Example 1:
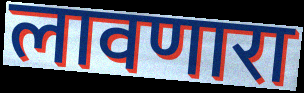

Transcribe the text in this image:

लावणारा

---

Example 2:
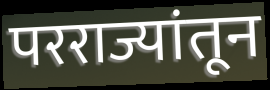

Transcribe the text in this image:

परराज्यांतून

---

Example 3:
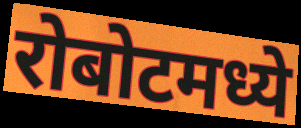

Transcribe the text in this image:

रोबोटमध्ये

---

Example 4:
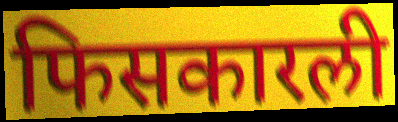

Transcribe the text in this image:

फिसकारली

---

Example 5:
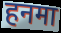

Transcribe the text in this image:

हनमा